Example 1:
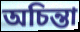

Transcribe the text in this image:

অচিন্তা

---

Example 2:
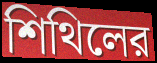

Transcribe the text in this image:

শিথিলের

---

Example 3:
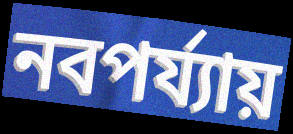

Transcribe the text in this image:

নবপর্য্যায়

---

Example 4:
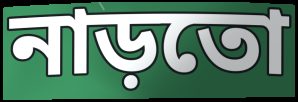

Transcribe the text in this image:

নাড়তো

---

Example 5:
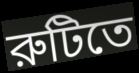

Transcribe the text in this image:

রুটিতে